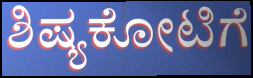
ಶಿಷ್ಯಕೋಟಿಗೆ